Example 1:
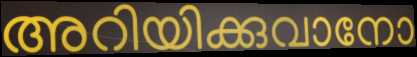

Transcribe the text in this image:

അറിയിക്കുവാനോ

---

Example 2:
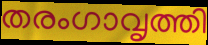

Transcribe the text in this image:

തരംഗാവൃത്തി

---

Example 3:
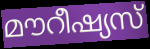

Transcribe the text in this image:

മൗറീഷ്യസ്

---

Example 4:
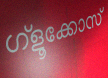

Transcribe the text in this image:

ഗ്ളൂക്കോസ്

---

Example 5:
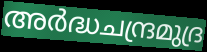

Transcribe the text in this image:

അർദ്ധചന്ദ്രമുദ്ര